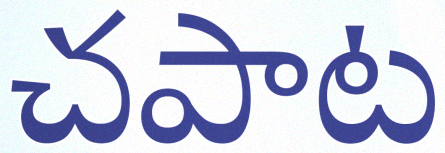
చపాట